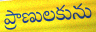
ప్రాణులకును